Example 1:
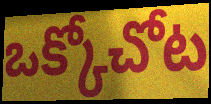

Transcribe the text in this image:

ఒక్కోచోట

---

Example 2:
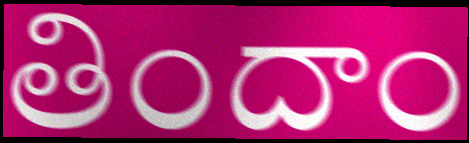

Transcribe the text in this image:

తిందాం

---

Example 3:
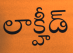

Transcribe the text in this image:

లాక్హీడ్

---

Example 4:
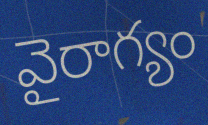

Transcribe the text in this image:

వైరాగ్యం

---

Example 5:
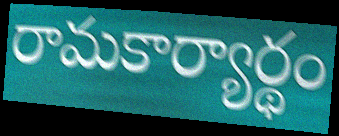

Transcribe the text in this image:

రామకార్యార్థం